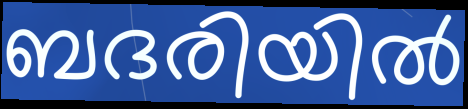
ബദരിയിൽ